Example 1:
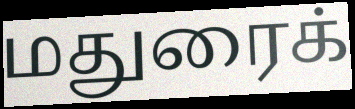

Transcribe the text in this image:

மதுரைக்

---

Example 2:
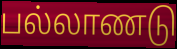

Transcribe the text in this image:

பல்லாணடு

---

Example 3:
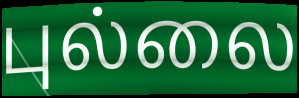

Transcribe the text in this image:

புல்லை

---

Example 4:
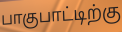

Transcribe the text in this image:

பாகுபாட்டிற்கு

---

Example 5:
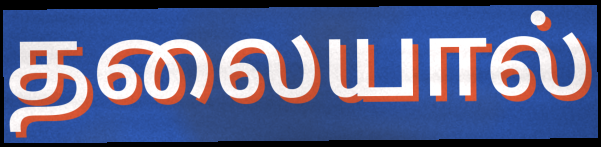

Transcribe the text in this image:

தலையால்